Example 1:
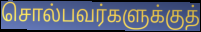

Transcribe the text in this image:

சொல்பவர்களுக்குத்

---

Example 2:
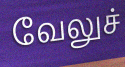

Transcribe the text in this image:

வேலுச்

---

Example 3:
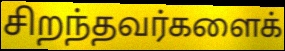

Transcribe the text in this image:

சிறந்தவர்களைக்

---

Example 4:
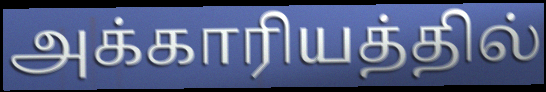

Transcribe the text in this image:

அக்காரியத்தில்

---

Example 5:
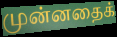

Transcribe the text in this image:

முன்னதைக்